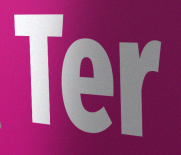
Ter